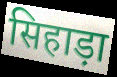
सिहाड़ा